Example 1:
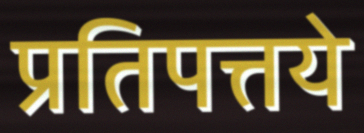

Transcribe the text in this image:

प्रतिपत्तये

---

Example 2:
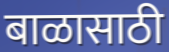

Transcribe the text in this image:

बाळासाठी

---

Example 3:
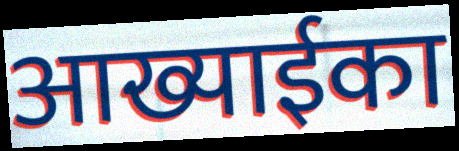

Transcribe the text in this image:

आख्याईका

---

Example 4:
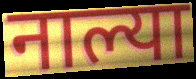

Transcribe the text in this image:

नाल्या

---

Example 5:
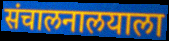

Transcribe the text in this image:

संचालनालयाला